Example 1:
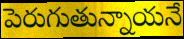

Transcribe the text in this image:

పెరుగుతున్నాయనే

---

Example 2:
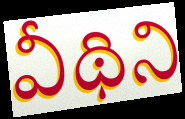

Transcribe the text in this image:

వీథిని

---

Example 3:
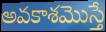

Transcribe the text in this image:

అవకాశమొస్తే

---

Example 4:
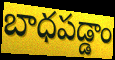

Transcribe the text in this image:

బాధపడ్డాం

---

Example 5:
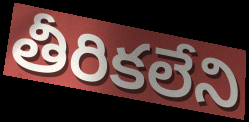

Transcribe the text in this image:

తీరికలేని